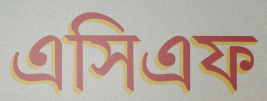
এসিএফ